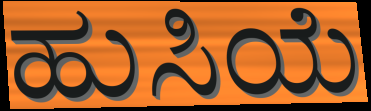
ಹುಸಿಯೆ